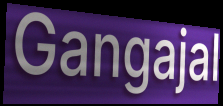
Gangajal